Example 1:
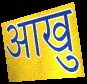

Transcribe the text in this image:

आखु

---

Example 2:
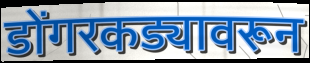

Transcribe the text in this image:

डोंगरकड्यावरून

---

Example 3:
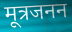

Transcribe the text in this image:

मूत्रजनन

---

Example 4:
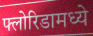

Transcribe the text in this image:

फ्लोरिडामध्ये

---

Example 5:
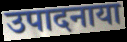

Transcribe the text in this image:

उपादनाया